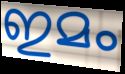
ഇമം